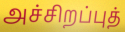
அச்சிறப்புத்